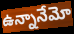
ఉన్నానేమో